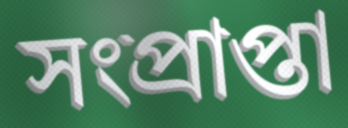
সংপ্রাপ্তা